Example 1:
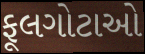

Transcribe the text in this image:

ફૂલગોટાઓ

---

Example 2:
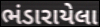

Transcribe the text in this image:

ભંડારાયેલા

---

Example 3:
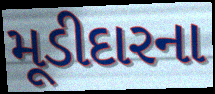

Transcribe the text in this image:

મૂડીદારના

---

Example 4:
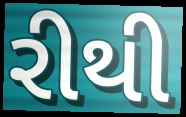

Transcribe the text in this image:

રીથી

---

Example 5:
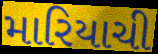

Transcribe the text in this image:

મારિયાચી